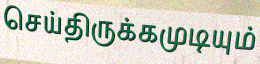
செய்திருக்கமுடியும்